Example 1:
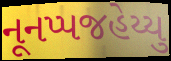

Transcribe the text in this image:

નૂનપ્પજહેય્યુ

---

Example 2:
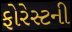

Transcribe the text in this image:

ફોરેસ્ટની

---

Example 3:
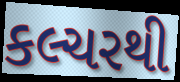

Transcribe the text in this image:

કલ્ચરથી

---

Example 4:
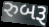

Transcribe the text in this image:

રુબરૂ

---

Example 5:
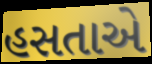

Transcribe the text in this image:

હસતાએ